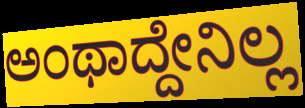
ಅಂಥಾದ್ದೇನಿಲ್ಲ